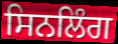
ਸਿਨਲਿੰਗ